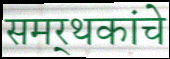
समर्थकांचे